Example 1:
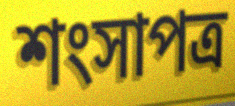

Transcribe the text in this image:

শংসাপত্র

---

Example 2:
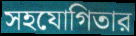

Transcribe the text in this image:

সহযোগিতার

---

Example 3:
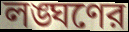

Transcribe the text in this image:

লঙ্ঘণের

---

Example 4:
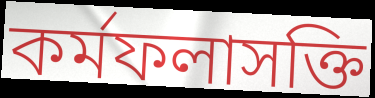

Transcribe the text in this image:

কর্মফলাসক্তি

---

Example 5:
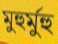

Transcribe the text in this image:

মুহুর্মুহু